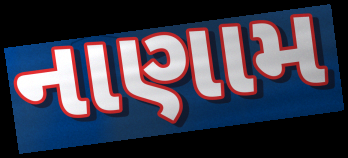
નાણામ